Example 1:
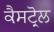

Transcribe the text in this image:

ਕੈਸਟ੍ਰੋਲ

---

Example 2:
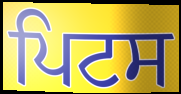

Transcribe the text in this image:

ਪਿਟਸ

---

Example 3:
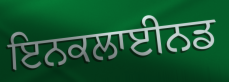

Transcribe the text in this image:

ਇਨਕਲਾਈਨਡ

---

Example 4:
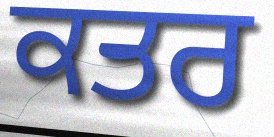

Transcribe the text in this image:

ਕਤਰ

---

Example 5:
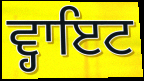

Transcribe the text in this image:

ਵ੍ਹਾਇਟ